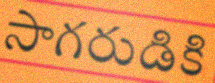
సాగరుడికి